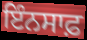
ਇੰਨਸਾਫ਼